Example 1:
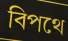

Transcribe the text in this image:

বিপথে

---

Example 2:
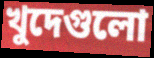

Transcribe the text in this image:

খুদেগুলো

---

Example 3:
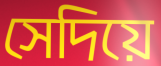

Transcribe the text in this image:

সেদিয়ে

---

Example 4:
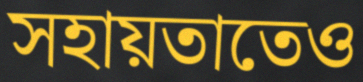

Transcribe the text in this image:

সহায়তাতেও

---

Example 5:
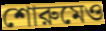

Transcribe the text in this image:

শোরুমেও